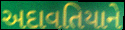
અદાવતિયાને